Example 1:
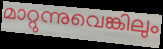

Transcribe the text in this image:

മാറ്റുന്നുവെങ്കിലും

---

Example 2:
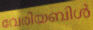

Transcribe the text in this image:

വേരിയബിൾ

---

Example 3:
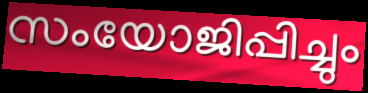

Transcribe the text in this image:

സംയോജിപ്പിച്ചും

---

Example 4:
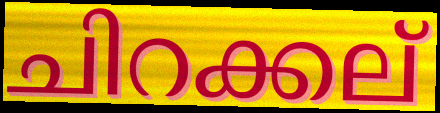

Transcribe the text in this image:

ചിറക്കല്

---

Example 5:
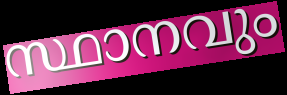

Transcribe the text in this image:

സ്ഥാനവും